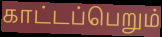
காட்டப்பெறும்